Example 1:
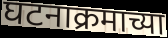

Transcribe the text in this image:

घटनाक्रमाच्या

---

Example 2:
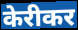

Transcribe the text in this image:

केरीकर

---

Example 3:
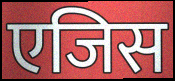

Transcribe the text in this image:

एजिस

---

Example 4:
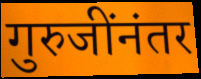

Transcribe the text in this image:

गुरुजींनंतर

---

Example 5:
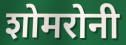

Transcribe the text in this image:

शोमरोनी